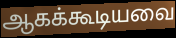
ஆகக்கூடியவை